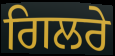
ਗਿਲਰੇ